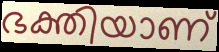
ഭക്തിയാണ്